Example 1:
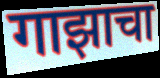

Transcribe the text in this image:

गाझाचा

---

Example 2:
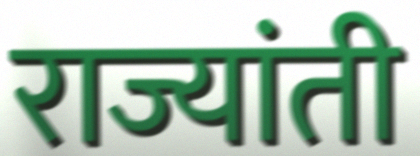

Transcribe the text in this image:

राज्यांती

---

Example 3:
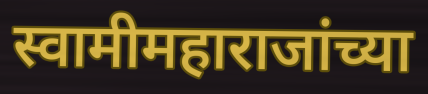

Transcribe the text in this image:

स्वामीमहाराजांच्या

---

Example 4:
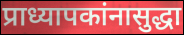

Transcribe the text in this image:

प्राध्यापकांनासुद्धा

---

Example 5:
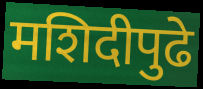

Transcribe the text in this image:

मशिदीपुढे